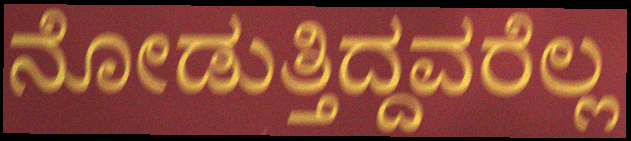
ನೋಡುತ್ತಿದ್ದವರೆಲ್ಲ